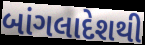
બાંગલાદેશથી